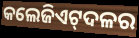
କଲେଜିଏଟ୍‍ଦଳର